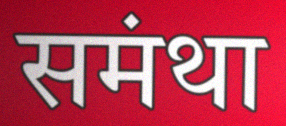
समंथा